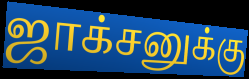
ஜாக்சனுக்கு